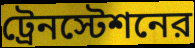
ট্রেনস্টেশনের